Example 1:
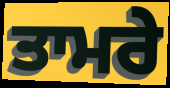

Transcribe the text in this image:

ਤਾਮਰੇ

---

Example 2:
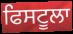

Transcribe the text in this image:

ਫਿਸਟੂਲਾ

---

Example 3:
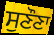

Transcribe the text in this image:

ਸੁਣੌਣਾ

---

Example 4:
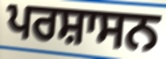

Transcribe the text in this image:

ਪਰਸ਼ਾਸਨ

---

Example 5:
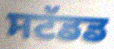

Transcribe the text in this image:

ਸਟੱਡਡ